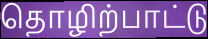
தொழிற்பாட்டு